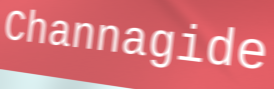
Channagide